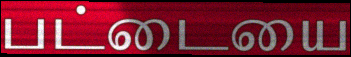
பட்டையை